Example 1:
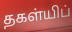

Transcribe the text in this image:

தகள்யிப்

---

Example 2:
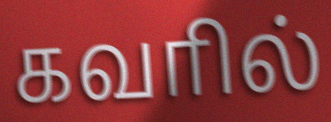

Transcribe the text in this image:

கவரில்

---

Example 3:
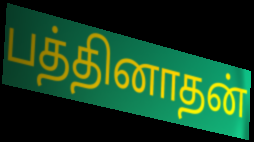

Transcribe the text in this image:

பத்தினாதன்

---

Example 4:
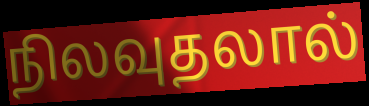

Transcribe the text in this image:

நிலவுதலால்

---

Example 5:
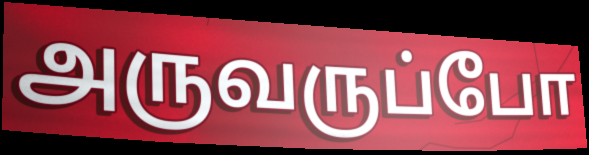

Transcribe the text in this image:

அருவருப்போ